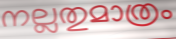
നല്ലതുമാത്രം